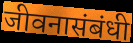
जीवनासंबंधी